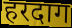
हरदाग